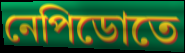
নেপিডোতে